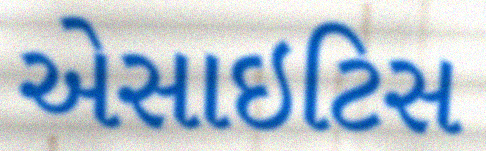
એસાઇટિસ